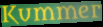
Kummer